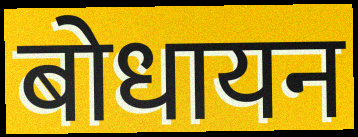
बोधायन